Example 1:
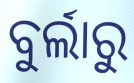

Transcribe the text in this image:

ବୁର୍ଲାରୁ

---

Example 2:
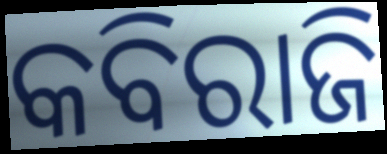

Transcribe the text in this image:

କବିରାଜି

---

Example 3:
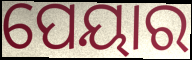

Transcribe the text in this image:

ପେୟାର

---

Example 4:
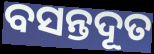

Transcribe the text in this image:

ବସନ୍ତଦୂତ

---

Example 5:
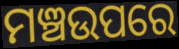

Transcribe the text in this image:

ମଞ୍ଚଉପରେ